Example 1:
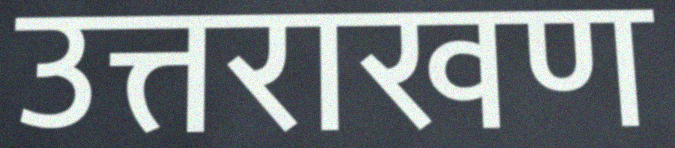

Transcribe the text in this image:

उत्तराखण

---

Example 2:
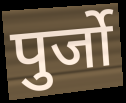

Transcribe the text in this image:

पुर्जो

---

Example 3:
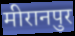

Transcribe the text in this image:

मीरानपुर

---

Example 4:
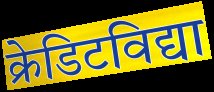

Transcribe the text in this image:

क्रेडिटविद्या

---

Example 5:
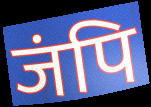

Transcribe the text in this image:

जंपि